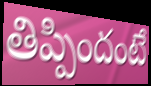
తిప్పిందంటే